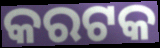
କରଟକ